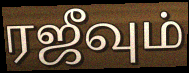
ரஜீவும்